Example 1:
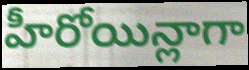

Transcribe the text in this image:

హీరోయిన్లాగా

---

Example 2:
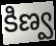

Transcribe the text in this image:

కిణ్వ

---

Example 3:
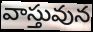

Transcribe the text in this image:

వాస్తువున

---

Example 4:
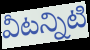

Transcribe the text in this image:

వీటన్నిటి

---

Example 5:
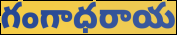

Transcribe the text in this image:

గంగాధరాయ